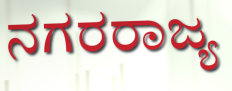
ನಗರರಾಜ್ಯ